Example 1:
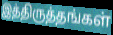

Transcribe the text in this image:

இத்திருத்தங்கள்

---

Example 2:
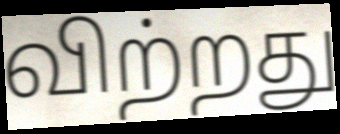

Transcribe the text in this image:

விற்றது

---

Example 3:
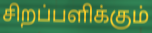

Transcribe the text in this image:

சிறப்பளிக்கும்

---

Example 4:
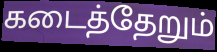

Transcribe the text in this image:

கடைத்தேறும்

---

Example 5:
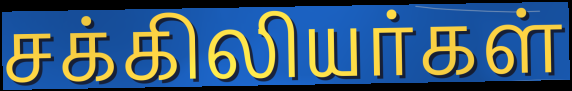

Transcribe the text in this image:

சக்கிலியர்கள்